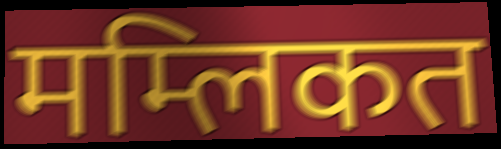
मम्लिकत